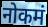
नोकमं